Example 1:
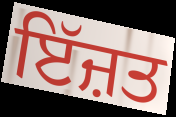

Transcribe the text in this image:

ਇੱਜ਼ਤ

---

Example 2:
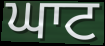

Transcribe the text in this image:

ਘਾਟ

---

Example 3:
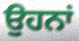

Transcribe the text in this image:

ਉਹਨਾਂ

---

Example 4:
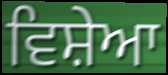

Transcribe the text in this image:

ਵਿਸ਼ੇਆ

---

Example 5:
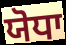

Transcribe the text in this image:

ਯੋਧਾ